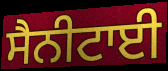
ਸੈਨੀਟਾਈ